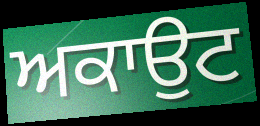
ਅਕਾਉਟ